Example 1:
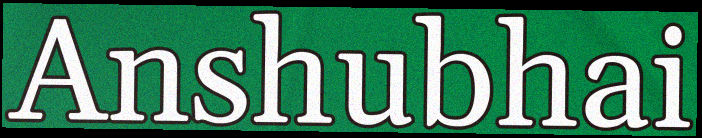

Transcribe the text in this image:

Anshubhai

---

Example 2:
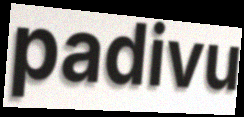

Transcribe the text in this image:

padivu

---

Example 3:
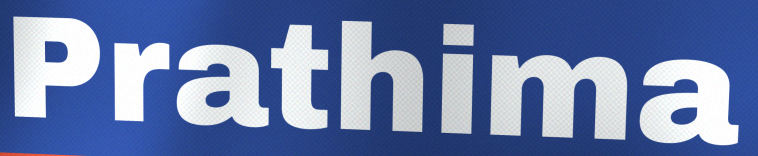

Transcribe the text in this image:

Prathima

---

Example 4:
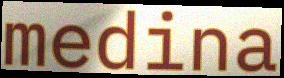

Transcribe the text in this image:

medina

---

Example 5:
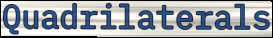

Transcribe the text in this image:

Quadrilaterals